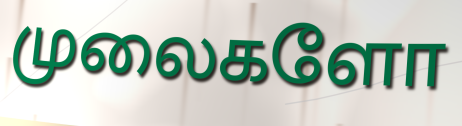
முலைகளோ